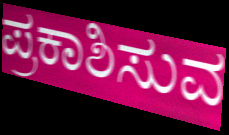
ಪ್ರಕಾಶಿಸುವ